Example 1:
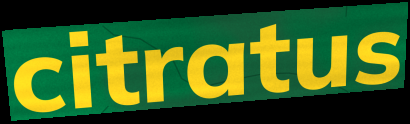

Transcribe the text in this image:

citratus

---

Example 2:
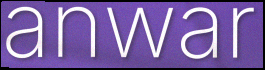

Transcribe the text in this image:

anwar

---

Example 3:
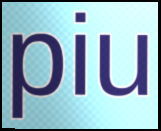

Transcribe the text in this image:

piu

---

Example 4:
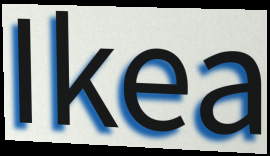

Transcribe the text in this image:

Ikea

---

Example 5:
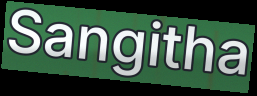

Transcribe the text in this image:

Sangitha